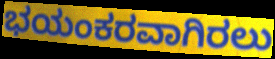
ಭಯಂಕರವಾಗಿರಲು